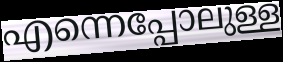
എന്നെപ്പോലുള്ള